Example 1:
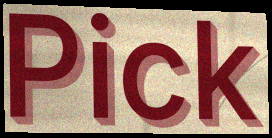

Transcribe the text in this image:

Pick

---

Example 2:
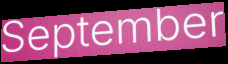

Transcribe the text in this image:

September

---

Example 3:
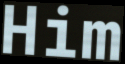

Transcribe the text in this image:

Him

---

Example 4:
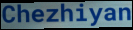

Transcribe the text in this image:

Chezhiyan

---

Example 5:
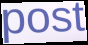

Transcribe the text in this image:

post